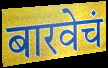
बारवेचं